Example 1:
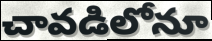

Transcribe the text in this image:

చావడిలోనూ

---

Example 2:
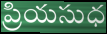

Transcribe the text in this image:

ప్రియసుధ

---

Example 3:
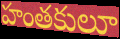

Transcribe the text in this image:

హంతకులూ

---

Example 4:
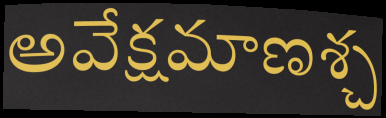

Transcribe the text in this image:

అవేక్షమాణశ్చ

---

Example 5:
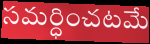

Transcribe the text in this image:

సమర్ధించటమే